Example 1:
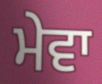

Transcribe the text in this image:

ਮੇਵਾ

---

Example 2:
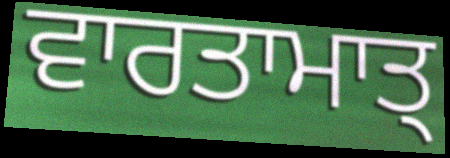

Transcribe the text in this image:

ਵਾਰਤਾਮਾਤ੍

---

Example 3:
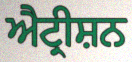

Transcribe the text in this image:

ਐਟ੍ਰੀਸ਼ਨ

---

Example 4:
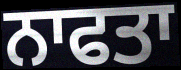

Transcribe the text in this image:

ਨਾਫਤਾ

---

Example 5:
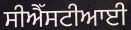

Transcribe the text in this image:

ਸੀਐੱਸਟੀਆਈ